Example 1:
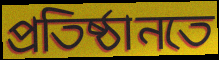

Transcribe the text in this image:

প্ৰতিষ্ঠানতে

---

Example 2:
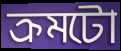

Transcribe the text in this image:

ক্ৰমটো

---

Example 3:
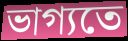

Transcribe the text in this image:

ভাগ্যতে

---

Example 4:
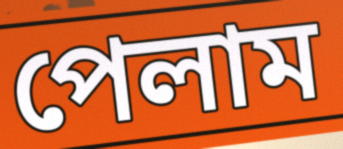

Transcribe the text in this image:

পেলাম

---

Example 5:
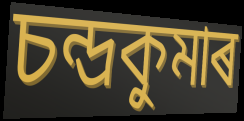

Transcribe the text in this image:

চন্দ্ৰকুমাৰ